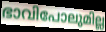
ഭാവിപോലുമില്ല